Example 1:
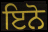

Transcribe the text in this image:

ਇਨੋ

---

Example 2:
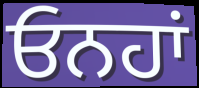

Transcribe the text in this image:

ਓਨਹਾਂ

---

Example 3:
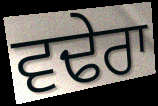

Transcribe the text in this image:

ਵਢੇਰਾ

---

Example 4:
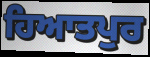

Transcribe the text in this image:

ਹਿਆਤਪੁਰ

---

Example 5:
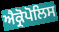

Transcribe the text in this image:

ਐਕ੍ਰੋਪੋਲਿਸ